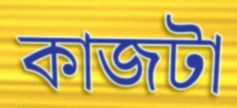
কাজটা